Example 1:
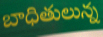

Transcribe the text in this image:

బాధితులున్న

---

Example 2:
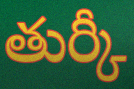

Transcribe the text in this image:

తుర్కీ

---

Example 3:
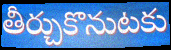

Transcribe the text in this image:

తీర్చుకొనుటకు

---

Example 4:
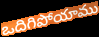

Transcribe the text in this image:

ఒదిగిపోయాము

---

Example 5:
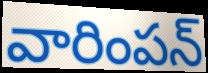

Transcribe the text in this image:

వారింపన్